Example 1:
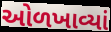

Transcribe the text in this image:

ઓળખાવ્યાં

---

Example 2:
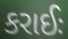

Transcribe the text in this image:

કરાઈઃ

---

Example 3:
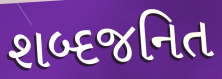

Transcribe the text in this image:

શબ્દજનિત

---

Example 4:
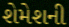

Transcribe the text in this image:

શેમેશની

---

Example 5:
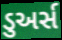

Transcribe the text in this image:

ડુઅર્સ